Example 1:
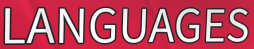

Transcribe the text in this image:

LANGUAGES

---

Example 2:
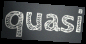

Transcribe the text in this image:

quasi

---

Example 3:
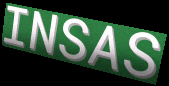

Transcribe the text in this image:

INSAS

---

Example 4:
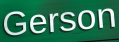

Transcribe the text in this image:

Gerson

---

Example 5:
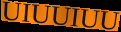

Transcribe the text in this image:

UIUUIUU